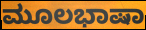
ಮೂಲಭಾಷಾ